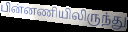
பின்னணியிலிருந்து